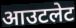
आउटलेट